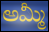
అమ్మీ